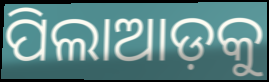
ପିଲାଆଡ଼କୁ